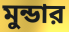
মুন্ডার